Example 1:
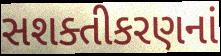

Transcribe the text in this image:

સશક્તીકરણનાં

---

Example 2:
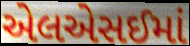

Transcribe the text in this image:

એલએસઈમાં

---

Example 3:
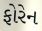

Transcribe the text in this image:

ફોરેન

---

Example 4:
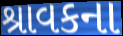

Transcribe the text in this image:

શ્રાવકના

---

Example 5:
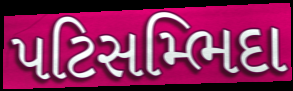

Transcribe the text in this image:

પટિસમ્ભિદા